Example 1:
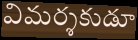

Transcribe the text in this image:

విమర్శకుడూ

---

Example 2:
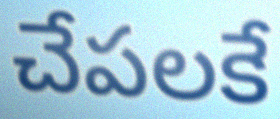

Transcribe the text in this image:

చేపలకే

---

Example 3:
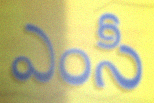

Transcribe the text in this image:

ఎంసీ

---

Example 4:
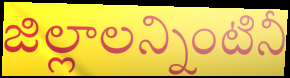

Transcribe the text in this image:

జిల్లాలన్నింటినీ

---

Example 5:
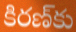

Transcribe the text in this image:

కిరణ్‌కు